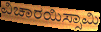
ವಿಚಾರಯಿಸ್ಸಾಮಿ